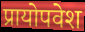
प्रायोपवेश